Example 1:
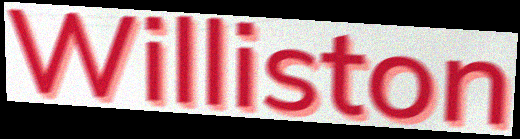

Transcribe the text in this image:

Williston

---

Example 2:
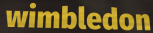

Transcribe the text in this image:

wimbledon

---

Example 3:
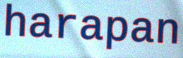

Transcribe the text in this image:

harapan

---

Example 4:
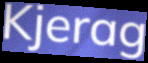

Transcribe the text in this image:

Kjerag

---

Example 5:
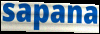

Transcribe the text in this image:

sapana